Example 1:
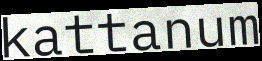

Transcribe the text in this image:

kattanum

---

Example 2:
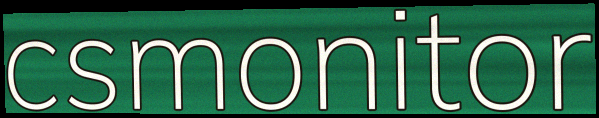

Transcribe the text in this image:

csmonitor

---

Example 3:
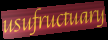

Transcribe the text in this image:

usufructuary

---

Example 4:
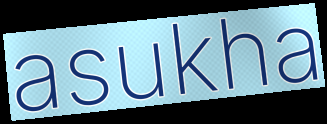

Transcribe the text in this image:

asukha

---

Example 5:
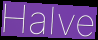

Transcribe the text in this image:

Halve